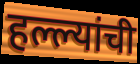
हल्ल्यांची